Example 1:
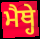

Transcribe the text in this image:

ਮੈਥ੍ਹੇ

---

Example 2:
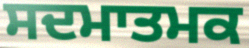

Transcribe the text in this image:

ਸਦਮਾਤਮਕ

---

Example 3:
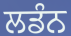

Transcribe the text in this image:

ਲਡੰਨ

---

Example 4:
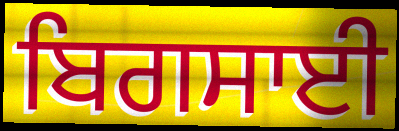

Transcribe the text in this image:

ਬਿਗਸਾਈ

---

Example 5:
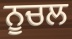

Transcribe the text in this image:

ਨੂਚਲ